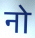
नो